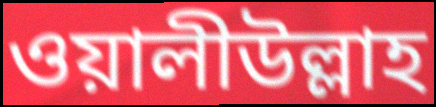
ওয়ালীউল্লাহ